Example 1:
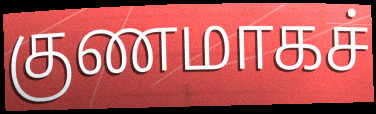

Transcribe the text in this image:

குணமாகச்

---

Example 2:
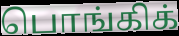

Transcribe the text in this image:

பொங்கிக்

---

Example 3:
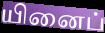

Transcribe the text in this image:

யினைப்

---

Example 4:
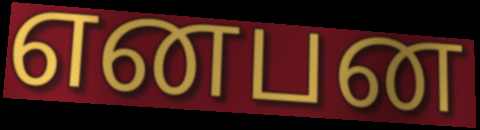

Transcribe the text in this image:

எனபன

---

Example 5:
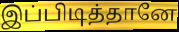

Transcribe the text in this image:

இப்பிடித்தானே